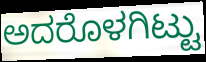
ಅದರೊಳಗಿಟ್ಟು